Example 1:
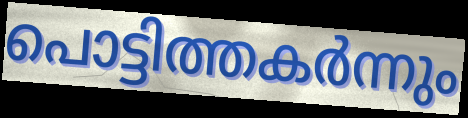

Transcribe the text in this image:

പൊട്ടിത്തകർന്നും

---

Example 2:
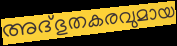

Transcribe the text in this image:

അദ്ഭുതകരവുമായ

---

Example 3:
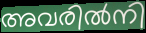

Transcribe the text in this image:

അവരിൽനി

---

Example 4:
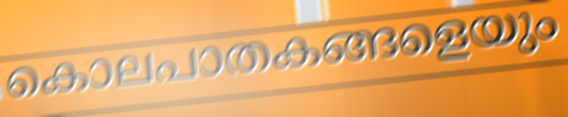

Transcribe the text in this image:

കൊലപാതകങ്ങളെയും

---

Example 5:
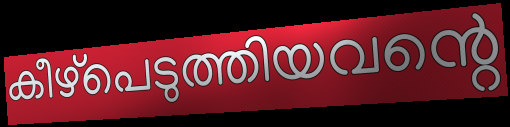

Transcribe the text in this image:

കീഴ്പെടുത്തിയവന്റെ